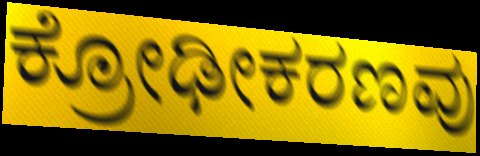
ಕ್ರೋಢೀಕರಣವು